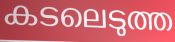
കടലെടുത്ത